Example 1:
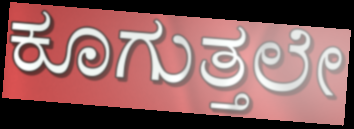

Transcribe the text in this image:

ಕೂಗುತ್ತಲೇ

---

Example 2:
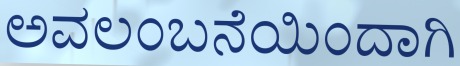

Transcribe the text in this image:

ಅವಲಂಬನೆಯಿಂದಾಗಿ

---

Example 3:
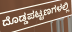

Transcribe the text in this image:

ದೊಡ್ಡಪಟ್ಟಣಗಳಲ್ಲಿ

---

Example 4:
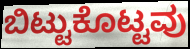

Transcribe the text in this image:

ಬಿಟ್ಟುಕೊಟ್ಟವು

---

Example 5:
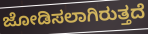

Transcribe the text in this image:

ಜೋಡಿಸಲಾಗಿರುತ್ತದೆ